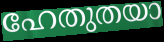
ഹേതുതയാ